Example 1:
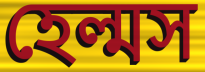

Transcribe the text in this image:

হেল্মস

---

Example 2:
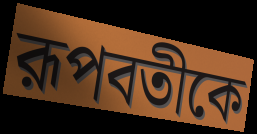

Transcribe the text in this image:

রূপবতীকে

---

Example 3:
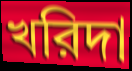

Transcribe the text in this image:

খরিদা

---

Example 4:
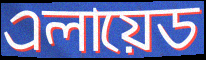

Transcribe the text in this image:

এলায়েড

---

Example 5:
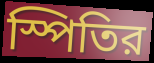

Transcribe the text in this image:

স্পিতির